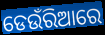
ଡେଉଁରିଆରେ